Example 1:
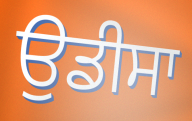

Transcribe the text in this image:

ਉਡੀਸਾ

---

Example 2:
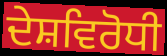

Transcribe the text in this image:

ਦੇਸ਼ਵਿਰੋਧੀ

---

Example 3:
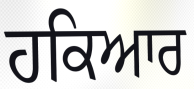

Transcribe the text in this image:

ਹਕਿਆਰ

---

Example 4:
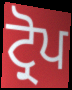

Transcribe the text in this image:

ਟ੍ਰੋਪ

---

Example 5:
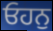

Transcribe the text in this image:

ਓਹਨੁ